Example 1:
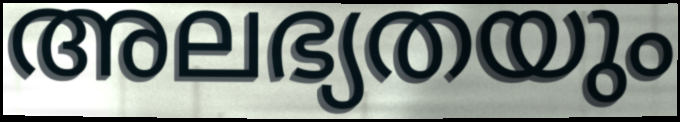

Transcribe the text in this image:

അലഭ്യതയും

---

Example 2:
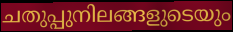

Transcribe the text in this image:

ചതുപ്പുനിലങ്ങളുടെയും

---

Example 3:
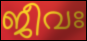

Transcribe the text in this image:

ജീവഃ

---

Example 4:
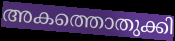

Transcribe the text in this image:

അകത്തൊതുക്കി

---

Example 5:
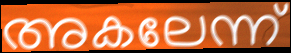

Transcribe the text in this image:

അകലേന്ന്